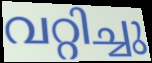
വറ്റിച്ചു